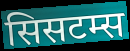
सिसटम्स